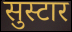
सुस्टार